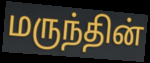
மருந்தின்